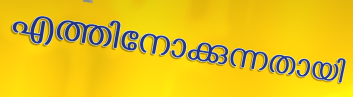
എത്തിനോക്കുന്നതായി